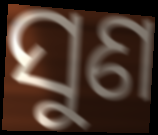
ସୁଣ